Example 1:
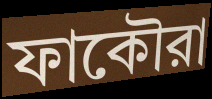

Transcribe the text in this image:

ফাকৌরা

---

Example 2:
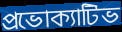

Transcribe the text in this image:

প্রভোক্যাটিভ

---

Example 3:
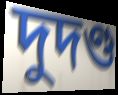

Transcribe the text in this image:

দুদণ্ড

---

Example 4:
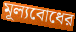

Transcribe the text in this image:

মূল্যবোধের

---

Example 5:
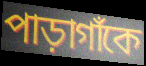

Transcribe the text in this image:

পাড়াগাঁকে